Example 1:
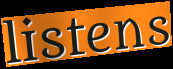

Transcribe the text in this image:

listens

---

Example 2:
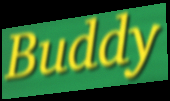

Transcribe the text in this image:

Buddy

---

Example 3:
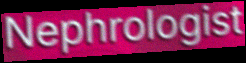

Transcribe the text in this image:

Nephrologist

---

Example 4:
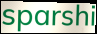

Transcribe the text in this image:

sparshi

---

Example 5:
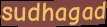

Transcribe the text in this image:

sudhagad